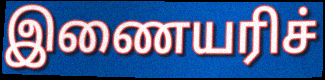
இணையரிச்